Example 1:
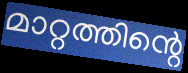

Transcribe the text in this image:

മാറ്റത്തിന്റെ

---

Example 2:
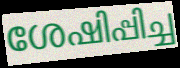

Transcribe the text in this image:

ശേഷിപ്പിച്ച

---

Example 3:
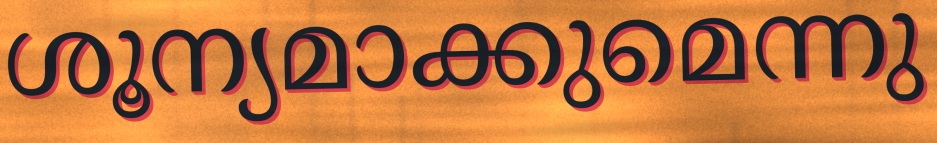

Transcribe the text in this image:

ശൂന്യമാക്കുമെന്നു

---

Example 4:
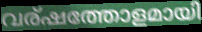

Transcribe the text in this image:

വര്ഷത്തോളമായി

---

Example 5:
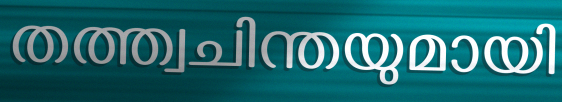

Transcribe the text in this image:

തത്ത്വചിന്തയുമായി